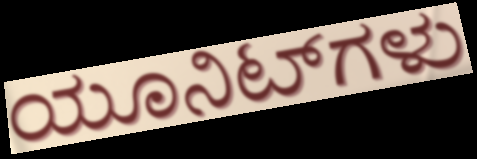
ಯೂನಿಟ್‌ಗಳು